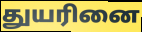
துயரினை